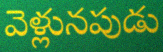
వెళ్లునపుడు